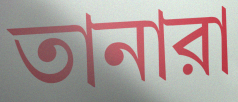
তানারা